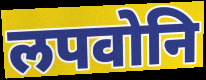
लपवोनि